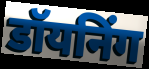
डॉयनिंग